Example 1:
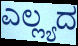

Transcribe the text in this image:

ಎಲ್ಲ್ಯದ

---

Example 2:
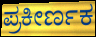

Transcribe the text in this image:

ಪ್ರಕೀರ್ಣಕ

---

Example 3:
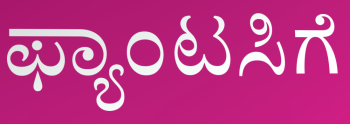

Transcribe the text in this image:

ಫ್ಯಾಂಟಸಿಗೆ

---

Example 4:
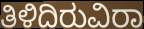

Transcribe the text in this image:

ತಿಳಿದಿರುವಿರಾ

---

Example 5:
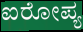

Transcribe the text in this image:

ಐರೋಪ್ಯ